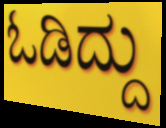
ಓಡಿದ್ದು